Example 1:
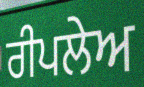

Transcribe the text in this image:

ਰੀਪਲੇਅ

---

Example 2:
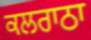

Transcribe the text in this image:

ਕਲਰਾਠਾ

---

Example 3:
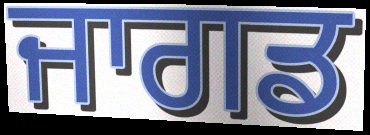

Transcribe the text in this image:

ਜਾਗਡ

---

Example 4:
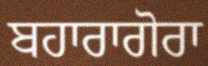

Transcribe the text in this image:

ਬਹਾਰਾਗੋਰਾ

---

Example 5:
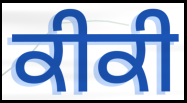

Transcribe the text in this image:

ਕੀਕੀ